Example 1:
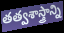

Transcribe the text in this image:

తత్వశాస్త్రాన్ని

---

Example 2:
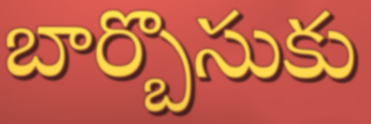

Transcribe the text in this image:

బార్బొసుకు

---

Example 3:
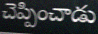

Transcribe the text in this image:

చెప్పించాడు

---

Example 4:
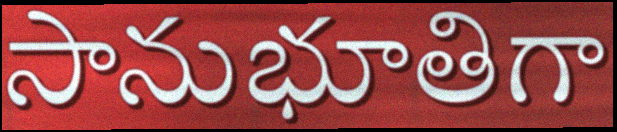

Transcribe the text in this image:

సానుభూతిగా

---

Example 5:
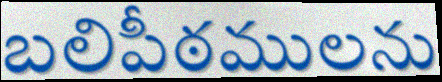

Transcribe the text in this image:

బలిపీఠములను